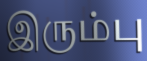
இரும்பு